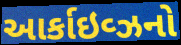
આર્કાઇવ્ઝનો